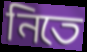
নিতে